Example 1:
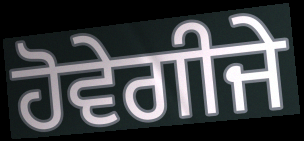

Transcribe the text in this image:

ਹੋਵੇਗੀਜੇ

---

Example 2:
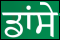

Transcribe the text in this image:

ਡਾਂਸੇ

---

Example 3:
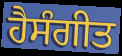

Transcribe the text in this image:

ਹੈਸੰਗੀਤ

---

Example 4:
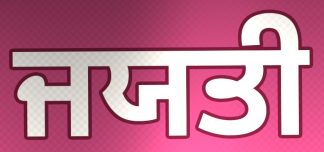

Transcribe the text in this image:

ਜਯਤੀ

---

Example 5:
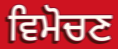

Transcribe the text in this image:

ਵਿਮੋਚਣ